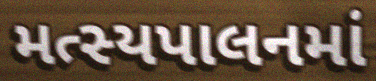
મત્સ્યપાલનમાં